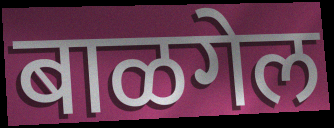
बाळगेल